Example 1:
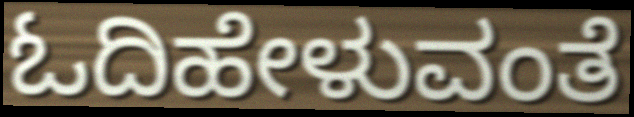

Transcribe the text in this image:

ಓದಿಹೇಳುವಂತೆ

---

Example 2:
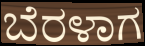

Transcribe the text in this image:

ಬೆರಳಾಗ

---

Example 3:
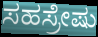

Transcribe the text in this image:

ಸಹಸ್ರೇಷು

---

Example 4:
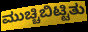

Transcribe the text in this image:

ಮುಚ್ಚಿಬಿಟ್ಟಿತು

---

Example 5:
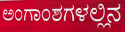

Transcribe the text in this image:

ಅಂಗಾಂಶಗಳಲ್ಲಿನ